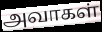
அவாகள்